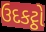
ઉદકટ્ઠો